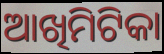
ଆଖିମିଟିକା